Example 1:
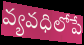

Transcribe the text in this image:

వ్యవధిలోపే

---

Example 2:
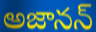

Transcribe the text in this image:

అజానన్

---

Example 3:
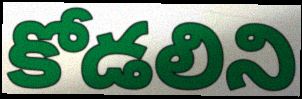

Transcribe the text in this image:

కోడలిని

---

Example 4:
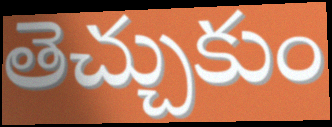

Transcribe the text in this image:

తెచ్చుకుం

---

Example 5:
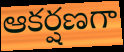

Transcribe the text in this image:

ఆకర్షణగా